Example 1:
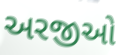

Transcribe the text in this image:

અરજીઓ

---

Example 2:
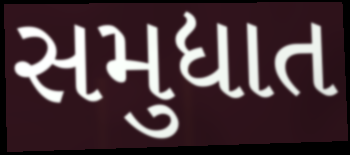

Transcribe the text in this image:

સમુદ્યાત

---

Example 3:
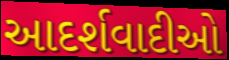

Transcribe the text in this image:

આદર્શવાદીઓ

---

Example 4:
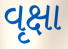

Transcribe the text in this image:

વૃક્ષા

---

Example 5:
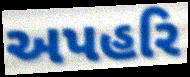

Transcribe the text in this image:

અપહરિ